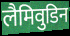
लैमिवुडिन